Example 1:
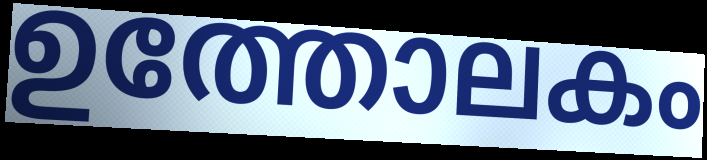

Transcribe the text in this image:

ഉത്തോലകം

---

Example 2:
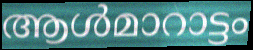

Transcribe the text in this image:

ആൾമാറാട്ടം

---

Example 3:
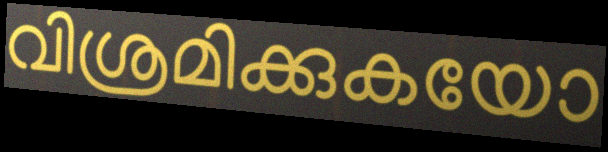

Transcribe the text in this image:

വിശ്രമിക്കുകയോ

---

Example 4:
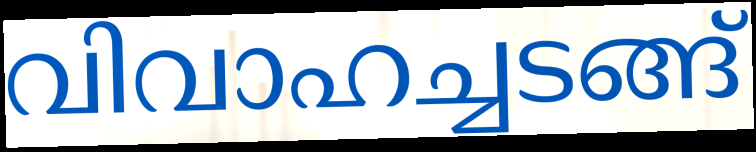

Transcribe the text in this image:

വിവാഹച്ചടങ്ങ്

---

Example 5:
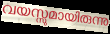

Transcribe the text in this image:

വയസ്സുമായിരുന്നു